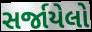
સર્જાયેલો